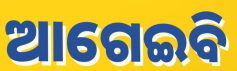
ଆଗେଇବି